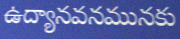
ఉద్యానవనమునకు